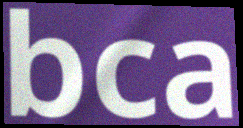
bca